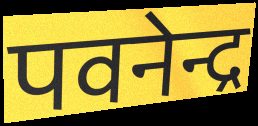
पवनेन्द्र